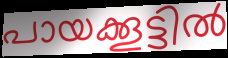
പായക്കൂട്ടിൽ